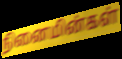
நினைமின்கள்